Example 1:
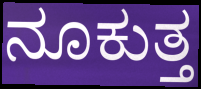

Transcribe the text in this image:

ನೂಕುತ್ತ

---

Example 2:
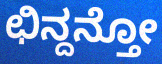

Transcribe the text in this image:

ಛಿನ್ದನ್ತೋ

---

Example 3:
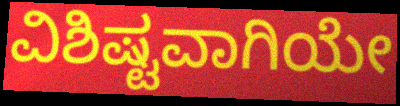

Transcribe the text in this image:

ವಿಶಿಷ್ಟವಾಗಿಯೇ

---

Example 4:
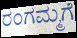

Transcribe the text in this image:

ರಂಗಮ್ಮಗೆ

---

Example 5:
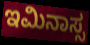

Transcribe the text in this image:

ಇಮಿನಾಸ್ಸ